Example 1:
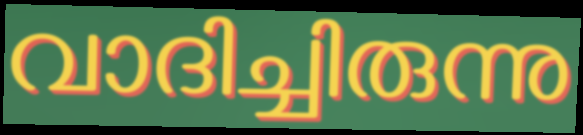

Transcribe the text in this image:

വാദിച്ചിരുന്നു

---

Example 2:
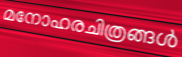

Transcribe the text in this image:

മനോഹരചിത്രങ്ങൾ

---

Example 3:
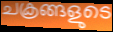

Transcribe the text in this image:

ചക്രങ്ങളുടെ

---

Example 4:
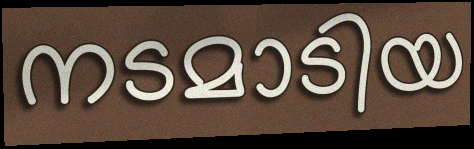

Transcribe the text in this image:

നടമാടിയ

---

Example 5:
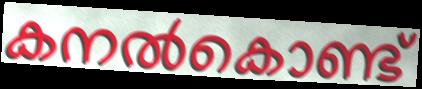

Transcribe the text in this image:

കനൽകൊണ്ട്